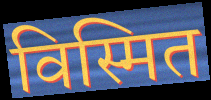
विस्मित